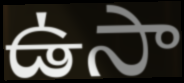
ఉసా